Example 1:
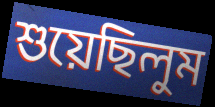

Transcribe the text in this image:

শুয়েছিলুম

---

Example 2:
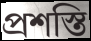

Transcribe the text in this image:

প্রশস্তি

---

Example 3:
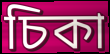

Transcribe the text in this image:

চিকা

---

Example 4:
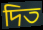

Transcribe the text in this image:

দিত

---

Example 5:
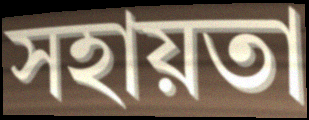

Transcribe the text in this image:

সহায়তা